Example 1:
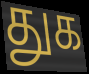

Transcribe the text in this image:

துக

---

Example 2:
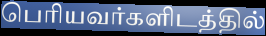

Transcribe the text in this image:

பெரியவர்களிடத்தில்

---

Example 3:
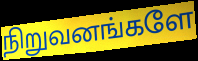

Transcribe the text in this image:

நிறுவனங்களே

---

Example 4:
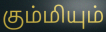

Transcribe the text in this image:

கும்மியும்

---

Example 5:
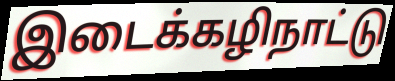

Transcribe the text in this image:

இடைக்கழிநாட்டு